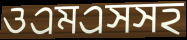
ওএমএসসহ